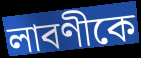
লাবণীকে